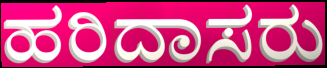
ಹರಿದಾಸರು